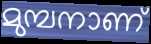
മുമ്പനാണ്